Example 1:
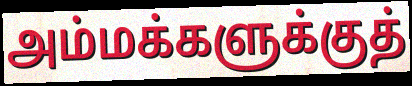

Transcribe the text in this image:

அம்மக்களுக்குத்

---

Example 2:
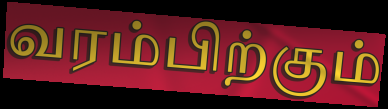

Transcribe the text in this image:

வரம்பிற்கும்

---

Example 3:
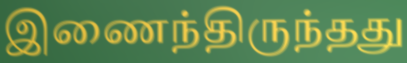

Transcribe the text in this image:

இணைந்திருந்தது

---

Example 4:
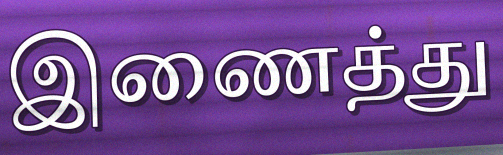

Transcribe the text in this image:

இணைத்து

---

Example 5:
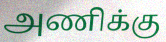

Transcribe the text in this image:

அணிக்கு